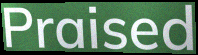
Praised